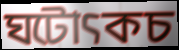
ঘটোৎকচ